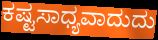
ಕಷ್ಟಸಾಧ್ಯವಾದುದು